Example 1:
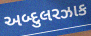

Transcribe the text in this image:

અબ્દુલરઝાક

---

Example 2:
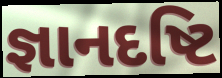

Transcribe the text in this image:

જ્ઞાનદષ્ટિ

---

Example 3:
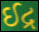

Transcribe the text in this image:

ઈદ્ર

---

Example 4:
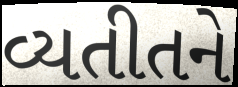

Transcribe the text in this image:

વ્યતીતને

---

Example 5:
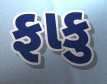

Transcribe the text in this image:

ફાકુ